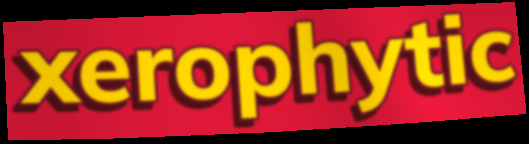
xerophytic